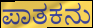
ಪಾತಕನು